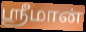
ஸ்ரீமான்